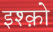
इश्क़ो